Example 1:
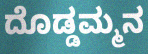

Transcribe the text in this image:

ದೊಡ್ಡಮ್ಮನ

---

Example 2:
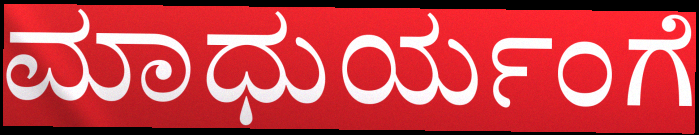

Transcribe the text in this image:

ಮಾಧುರ್ಯಂಗೆ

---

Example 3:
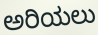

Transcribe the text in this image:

ಅರಿಯಲು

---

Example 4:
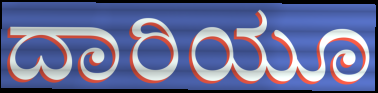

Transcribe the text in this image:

ದಾರಿಯೂ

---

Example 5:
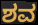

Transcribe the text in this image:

ಶವ